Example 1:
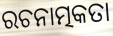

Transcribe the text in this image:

ରଚନାତ୍ମକତା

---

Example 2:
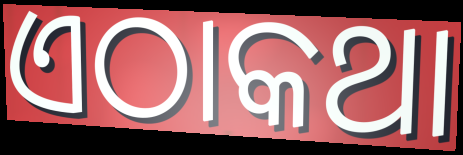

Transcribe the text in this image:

ଏଠାକଥା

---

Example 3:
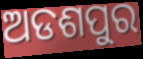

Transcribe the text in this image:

ଅଡଶପୁର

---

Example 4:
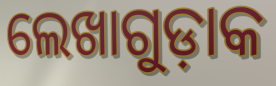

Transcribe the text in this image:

ଲେଖାଗୁଡ଼ାକ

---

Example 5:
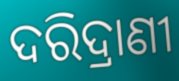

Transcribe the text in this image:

ଦରିଦ୍ରାଣୀ